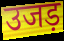
उजड़